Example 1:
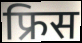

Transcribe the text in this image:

फ्रिस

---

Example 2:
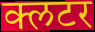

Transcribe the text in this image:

क्लटर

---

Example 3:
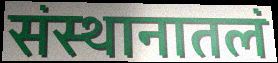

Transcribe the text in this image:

संस्थानातलं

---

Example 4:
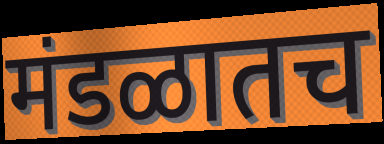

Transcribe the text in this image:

मंडळातच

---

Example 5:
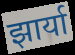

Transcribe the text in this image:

झार्या